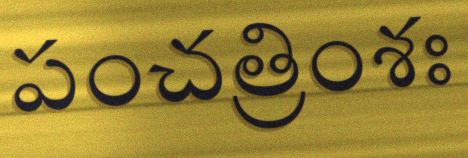
పంచత్రింశః